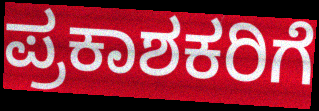
ಪ್ರಕಾಶಕರಿಗೆ